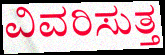
ವಿವರಿಸುತ್ತ